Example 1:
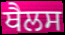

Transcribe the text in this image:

ਥੈਲਸ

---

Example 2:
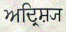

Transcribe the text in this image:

ਅਦ੍ਰਿਸ਼੍ਯ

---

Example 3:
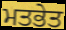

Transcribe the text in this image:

ਮਤਭੇਤ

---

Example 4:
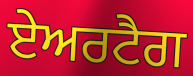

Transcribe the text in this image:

ਏਅਰਟੈਗ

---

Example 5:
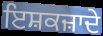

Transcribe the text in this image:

ਇਸ਼ਕਜ਼ਾਦੇ